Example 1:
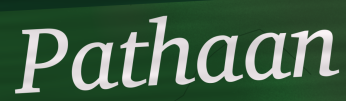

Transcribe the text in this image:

Pathaan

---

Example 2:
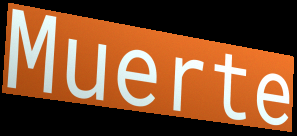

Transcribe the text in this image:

Muerte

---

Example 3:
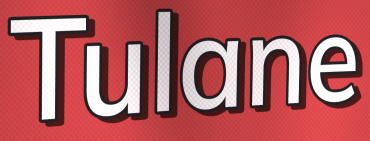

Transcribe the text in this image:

Tulane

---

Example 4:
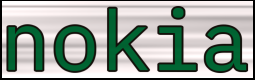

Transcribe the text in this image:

nokia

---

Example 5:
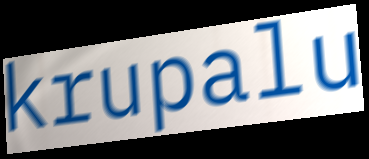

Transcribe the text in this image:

krupalu